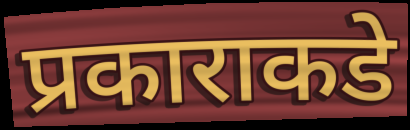
प्रकाराकडे